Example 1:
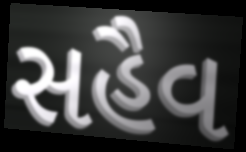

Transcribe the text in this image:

સહૈવ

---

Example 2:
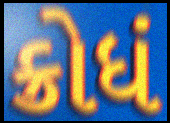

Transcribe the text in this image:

ક્રોધં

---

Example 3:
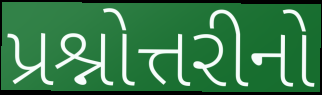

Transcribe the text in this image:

પ્રશ્નોત્તરીનો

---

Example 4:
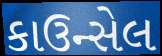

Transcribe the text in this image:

કાઉન્સેલ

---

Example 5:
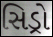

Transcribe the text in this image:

સિડ્રો